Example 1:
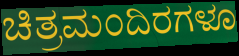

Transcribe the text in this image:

ಚಿತ್ರಮಂದಿರಗಳೂ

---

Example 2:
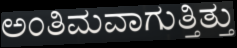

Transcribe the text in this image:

ಅಂತಿಮವಾಗುತ್ತಿತ್ತು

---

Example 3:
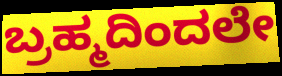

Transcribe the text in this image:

ಬ್ರಹ್ಮದಿಂದಲೇ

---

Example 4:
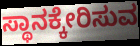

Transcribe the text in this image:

ಸ್ಥಾನಕ್ಕೇರಿಸುವ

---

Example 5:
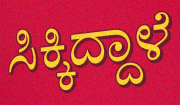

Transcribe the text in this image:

ಸಿಕ್ಕಿದ್ದಾಳೆ